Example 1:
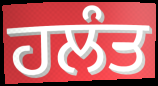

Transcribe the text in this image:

ਹਲੰਤ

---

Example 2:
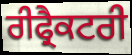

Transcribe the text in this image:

ਰੀਫ੍ਰੈਕਟਰੀ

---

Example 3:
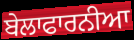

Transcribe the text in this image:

ਬੇਲਾਫਾਰਨੀਆ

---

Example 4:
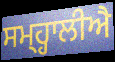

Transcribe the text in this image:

ਸਮ੍ਹ੍ਹਾਲੀਐ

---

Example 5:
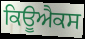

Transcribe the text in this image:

ਕਿਊਐਕਸ